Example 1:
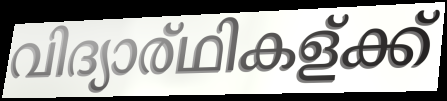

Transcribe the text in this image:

വിദ്യാര്ഥികള്ക്ക്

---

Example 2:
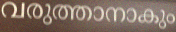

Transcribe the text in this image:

വരുത്താനാകും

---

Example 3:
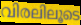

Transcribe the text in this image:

വിരലിലൂടെ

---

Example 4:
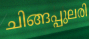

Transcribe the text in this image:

ചിങ്ങപ്പുലരി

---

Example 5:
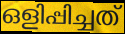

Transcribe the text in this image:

ഒളിപ്പിച്ചത്